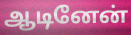
ஆடினேன்